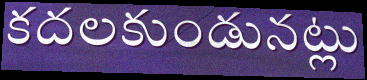
కదలకుండునట్లు